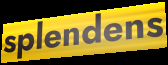
splendens